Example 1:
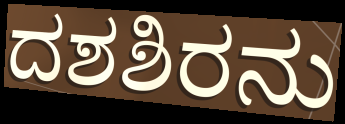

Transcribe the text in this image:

ದಶಶಿರನು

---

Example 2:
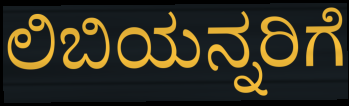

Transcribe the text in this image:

ಲಿಬಿಯನ್ನರಿಗೆ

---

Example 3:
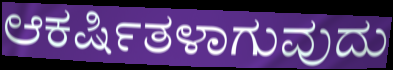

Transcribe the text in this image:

ಆಕರ್ಷಿತಳಾಗುವುದು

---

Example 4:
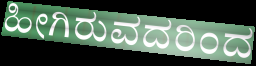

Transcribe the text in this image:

ಹೀಗಿರುವದರಿಂದ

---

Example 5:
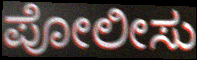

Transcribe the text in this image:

ಪೋಲೀಸು